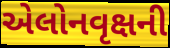
એલોનવૃક્ષની